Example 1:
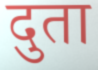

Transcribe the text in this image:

दुता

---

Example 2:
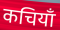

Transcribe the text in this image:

कचियाँ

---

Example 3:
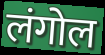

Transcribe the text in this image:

लंगोल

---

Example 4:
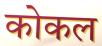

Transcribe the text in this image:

कोकल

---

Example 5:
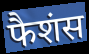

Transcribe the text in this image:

फैशंस